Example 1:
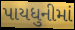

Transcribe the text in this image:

પાયધુનીમાં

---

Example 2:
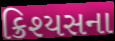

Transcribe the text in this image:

ક્રિશ્યસના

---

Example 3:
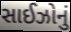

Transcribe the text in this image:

સાઈઝોનું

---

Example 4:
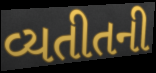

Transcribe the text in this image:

વ્યતીતની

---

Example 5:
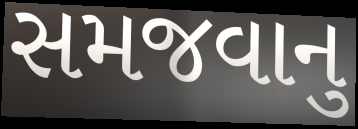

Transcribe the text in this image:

સમજવાનુ